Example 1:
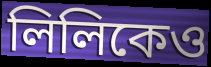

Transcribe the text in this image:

লিলিকেও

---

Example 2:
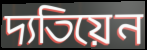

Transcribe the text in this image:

দ্যতিয়েন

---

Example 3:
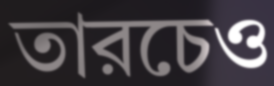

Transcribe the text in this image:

তারচেও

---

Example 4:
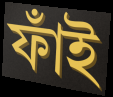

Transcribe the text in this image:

ফাঁই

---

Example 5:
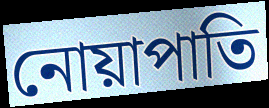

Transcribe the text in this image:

নোয়াপাতি